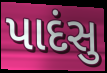
પાદંસુ